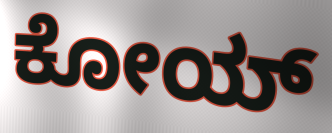
ಕೋಯ್